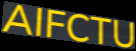
AIFCTU